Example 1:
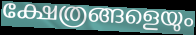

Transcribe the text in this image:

ക്ഷേത്രങ്ങളെയും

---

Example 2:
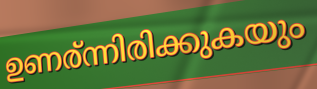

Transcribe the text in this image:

ഉണര്ന്നിരിക്കുകയും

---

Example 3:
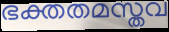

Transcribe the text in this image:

ഭക്തതമസ്തവ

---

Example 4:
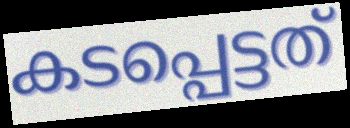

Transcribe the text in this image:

കടപ്പെട്ടത്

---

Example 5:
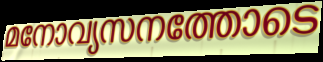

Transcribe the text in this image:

മനോവ്യസനത്തോടെ